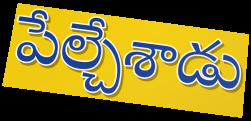
పేల్చేశాడు